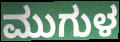
ಮುಗುಳ